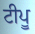
ਟੀਪੂ